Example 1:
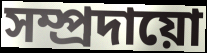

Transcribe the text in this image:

সম্প্ৰদায়ো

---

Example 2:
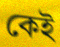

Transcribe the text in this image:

কেই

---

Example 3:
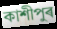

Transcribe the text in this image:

কাশীপুৰ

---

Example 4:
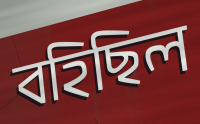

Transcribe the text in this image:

বহিছিল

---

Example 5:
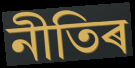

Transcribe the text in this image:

নীতিৰ